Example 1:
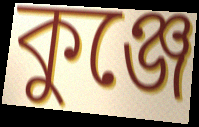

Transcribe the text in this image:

কুঞ্জে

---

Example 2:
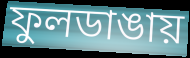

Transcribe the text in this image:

ফুলডাঙায়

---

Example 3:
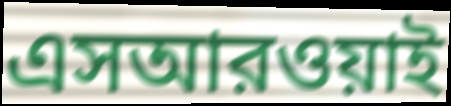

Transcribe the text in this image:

এসআরওয়াই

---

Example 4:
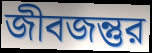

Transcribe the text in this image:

জীবজন্তুর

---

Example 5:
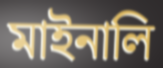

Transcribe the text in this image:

মাইনালি